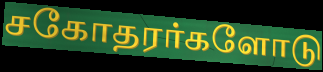
சகோதரர்களோடு